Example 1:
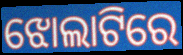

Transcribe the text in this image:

ଝୋଲାଟିରେ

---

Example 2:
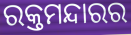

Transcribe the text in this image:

ରକ୍ତମନ୍ଦାରର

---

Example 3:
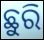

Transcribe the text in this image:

ଛୁରି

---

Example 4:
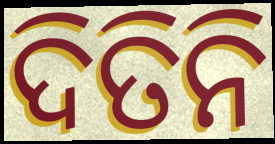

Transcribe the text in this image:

ଦିତିନି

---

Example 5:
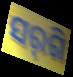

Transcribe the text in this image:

ସର୍‌ଗି